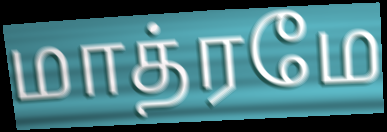
மாத்ரமே